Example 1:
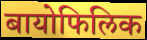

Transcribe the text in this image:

बायोफिलिक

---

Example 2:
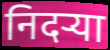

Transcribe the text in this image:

निदऱ्या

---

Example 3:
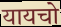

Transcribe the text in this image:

यायचो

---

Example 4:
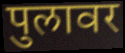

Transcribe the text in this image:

पुलावर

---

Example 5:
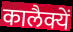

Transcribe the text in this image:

कालैक्यें